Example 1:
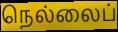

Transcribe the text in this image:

நெல்லைப்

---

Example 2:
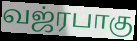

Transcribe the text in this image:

வஜ்ரபாகு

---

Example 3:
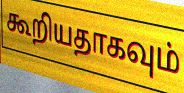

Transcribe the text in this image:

கூறியதாகவும்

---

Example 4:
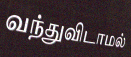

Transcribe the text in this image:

வந்துவிடாமல்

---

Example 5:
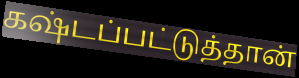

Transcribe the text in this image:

கஷ்டப்பட்டுத்தான்